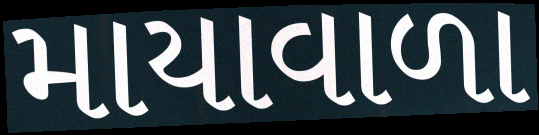
માયાવાળા